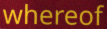
whereof